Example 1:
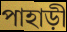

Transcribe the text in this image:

পাহাড়ী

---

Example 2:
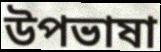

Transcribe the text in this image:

উপভাষা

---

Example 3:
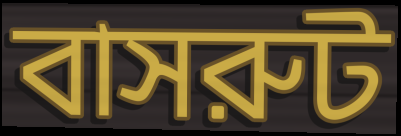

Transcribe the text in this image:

বাসরুট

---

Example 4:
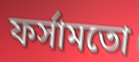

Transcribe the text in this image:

ফর্সামতো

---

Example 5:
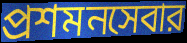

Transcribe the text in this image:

প্রশমনসেবার